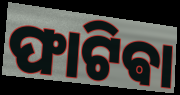
ଫାଟିଵା